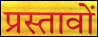
प्रस्‍तावों